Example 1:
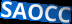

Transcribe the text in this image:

SAOCC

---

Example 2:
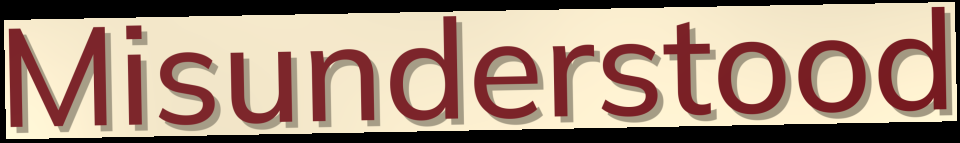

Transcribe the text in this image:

Misunderstood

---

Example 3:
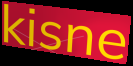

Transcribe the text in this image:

kisne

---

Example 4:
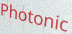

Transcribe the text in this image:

Photonic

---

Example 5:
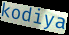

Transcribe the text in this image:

kodiya